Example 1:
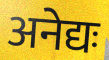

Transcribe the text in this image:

अनेद्यः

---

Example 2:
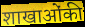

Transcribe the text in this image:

शाखाओंकी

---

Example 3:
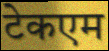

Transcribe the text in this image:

टेकएम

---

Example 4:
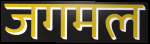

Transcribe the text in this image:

जगमल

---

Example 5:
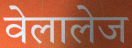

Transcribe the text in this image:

वेलालेज